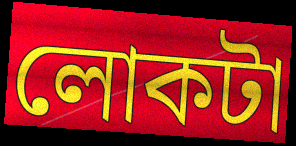
লোকটা